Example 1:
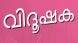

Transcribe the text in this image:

വിദൂഷക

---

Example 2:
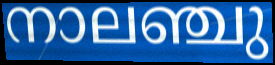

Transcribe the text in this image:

നാലഞ്ചു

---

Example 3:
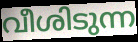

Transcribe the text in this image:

വീശിടുന്ന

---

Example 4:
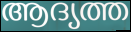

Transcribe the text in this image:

ആദ്യത്ത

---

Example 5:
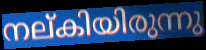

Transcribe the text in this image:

നല്കിയിരുന്നു